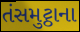
તંસમુટ્ઠાના